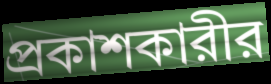
প্রকাশকারীর